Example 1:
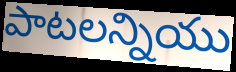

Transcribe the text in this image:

పాటలన్నియు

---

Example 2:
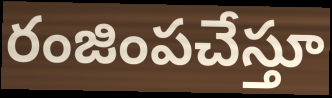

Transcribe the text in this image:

రంజింపచేస్తూ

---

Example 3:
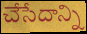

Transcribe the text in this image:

చేసేదాన్ని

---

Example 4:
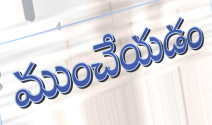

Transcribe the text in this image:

ముంచేయడం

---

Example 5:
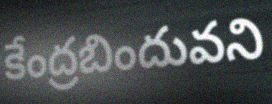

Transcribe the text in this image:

కేంద్రబిందువని